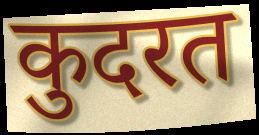
कुदरत